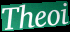
Theoi